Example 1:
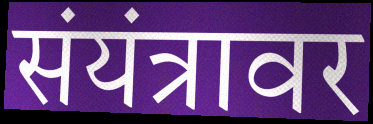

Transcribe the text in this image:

संयंत्रावर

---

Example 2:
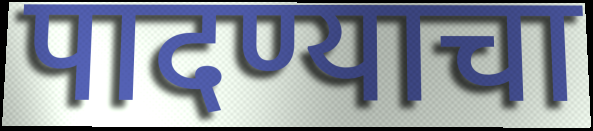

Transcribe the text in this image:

पादण्याचा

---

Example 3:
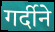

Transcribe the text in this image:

गर्दीने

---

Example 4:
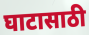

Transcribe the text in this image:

घाटासाठी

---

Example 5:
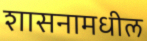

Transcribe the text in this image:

शासनामधील